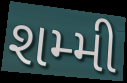
શમ્મી